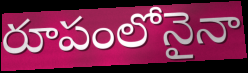
రూపంలోనైనా